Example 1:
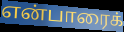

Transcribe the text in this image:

என்பாரைக்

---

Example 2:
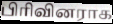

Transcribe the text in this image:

பிரிவினராக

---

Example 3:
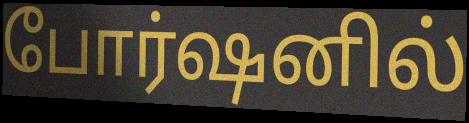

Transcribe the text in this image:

போர்ஷனில்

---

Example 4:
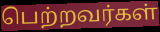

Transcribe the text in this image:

பெற்றவர்கள்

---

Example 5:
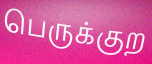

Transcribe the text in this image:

பெருக்குற